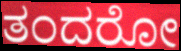
ತಂದರೋ